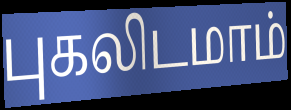
புகலிடமாம்